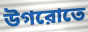
উগরোতে